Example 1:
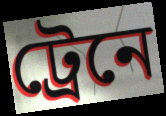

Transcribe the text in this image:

ট্রেনে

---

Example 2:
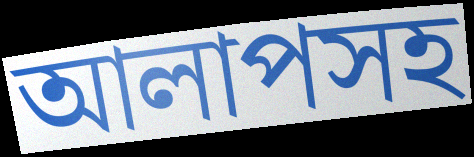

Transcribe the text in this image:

আলাপসহ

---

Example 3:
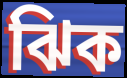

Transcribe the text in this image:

ঝিক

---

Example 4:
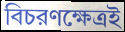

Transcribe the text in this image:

বিচরণক্ষেত্রই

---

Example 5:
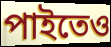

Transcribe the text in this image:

পাইতেও